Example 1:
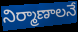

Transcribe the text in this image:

నిర్మాణాలనే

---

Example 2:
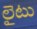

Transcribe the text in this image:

లైటు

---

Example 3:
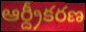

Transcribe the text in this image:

ఆర్ద్రీకరణ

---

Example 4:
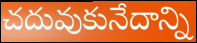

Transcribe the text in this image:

చదువుకునేదాన్ని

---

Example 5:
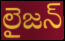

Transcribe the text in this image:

లైజన్